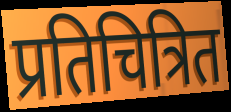
प्रतिचित्रित